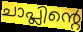
ചാപ്ലിന്റെ